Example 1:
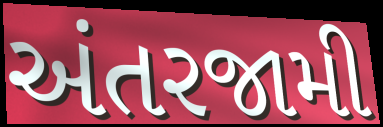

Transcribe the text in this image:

અંતરજામી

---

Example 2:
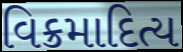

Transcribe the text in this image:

વિક્રમાદિત્ય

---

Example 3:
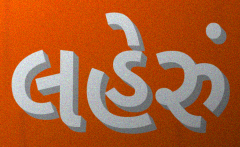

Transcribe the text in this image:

લહેરું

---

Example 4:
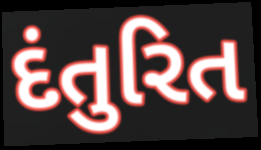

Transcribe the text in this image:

દંતુરિત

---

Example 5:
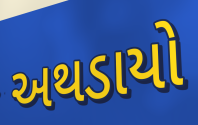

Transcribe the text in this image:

અથડાયો